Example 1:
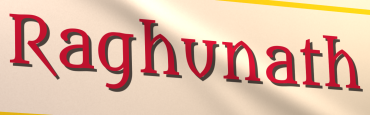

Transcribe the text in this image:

Raghunath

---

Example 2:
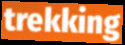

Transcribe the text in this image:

trekking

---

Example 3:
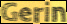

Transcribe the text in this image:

Gerin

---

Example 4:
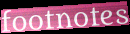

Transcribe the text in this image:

footnotes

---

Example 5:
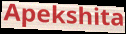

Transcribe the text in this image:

Apekshita